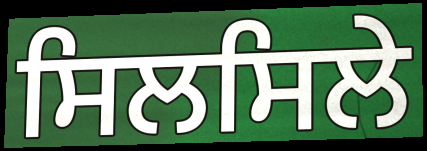
ਸਿਲਸਿਲੇ